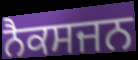
ਨੈਕਸਜਨ